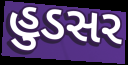
હુડસર